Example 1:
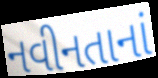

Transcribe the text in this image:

નવીનતાનાં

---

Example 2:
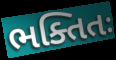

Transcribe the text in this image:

ભક્તિતઃ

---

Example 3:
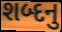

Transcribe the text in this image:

શબ્દનુ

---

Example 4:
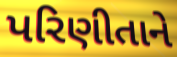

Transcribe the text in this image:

પરિણીતાને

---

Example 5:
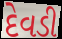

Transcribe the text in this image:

દેવડી